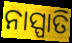
ନାସ୍ପାତି